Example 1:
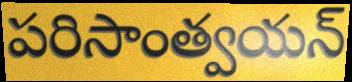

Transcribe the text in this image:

పరిసాంత్వయన్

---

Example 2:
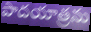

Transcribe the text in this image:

పాదయాత్రను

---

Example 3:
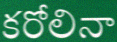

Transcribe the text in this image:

కరోలినా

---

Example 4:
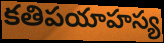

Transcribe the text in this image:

కతిపయాహస్య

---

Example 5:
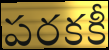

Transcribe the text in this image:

పరకకీ